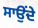
ਸਾਉਂਦੇ